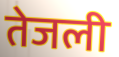
तेजली